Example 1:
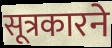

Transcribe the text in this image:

सूत्रकारने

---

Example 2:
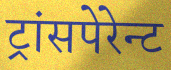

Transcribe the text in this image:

ट्रांसपेरेन्ट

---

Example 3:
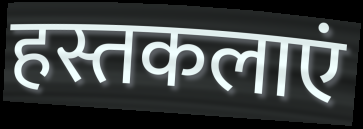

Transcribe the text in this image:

हस्तकलाएं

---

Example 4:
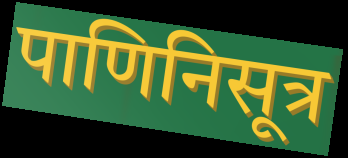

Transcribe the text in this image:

पाणिनिसूत्र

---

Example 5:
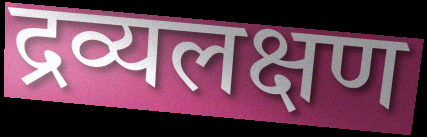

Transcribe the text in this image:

द्रव्यलक्षण